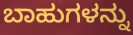
ಬಾಹುಗಳನ್ನು